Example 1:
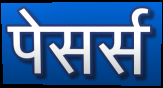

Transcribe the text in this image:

पेसर्स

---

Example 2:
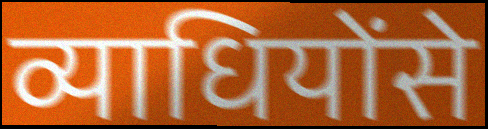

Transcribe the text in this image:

व्याधियोंसे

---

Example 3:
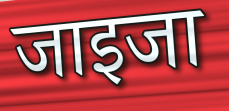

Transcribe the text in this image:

जाइजा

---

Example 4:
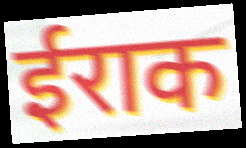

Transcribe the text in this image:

ईराक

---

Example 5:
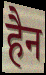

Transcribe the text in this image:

हैन